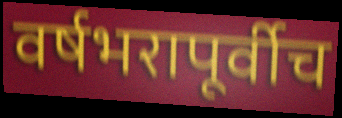
वर्षभरापूर्वीच